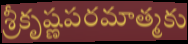
శ్రీకృష్ణపరమాత్మకు